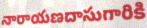
నారాయణదాసుగారికి